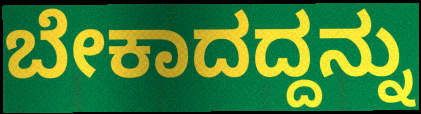
ಬೇಕಾದದ್ದನ್ನು